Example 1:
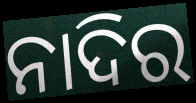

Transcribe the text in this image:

ନାଦିର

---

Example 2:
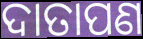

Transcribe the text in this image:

ଦାତାପଣ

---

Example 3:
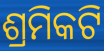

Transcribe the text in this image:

ଶ୍ରମିକଟି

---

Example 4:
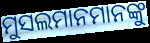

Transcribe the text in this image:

ମୁସଲମାନମାନଙ୍କୁ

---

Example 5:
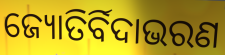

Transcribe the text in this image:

ଜ୍ୟୋତିର୍ବିଦାଭରଣ